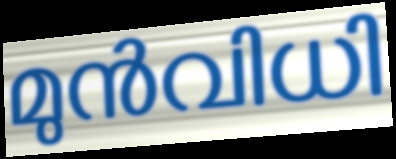
മുൻവിധി